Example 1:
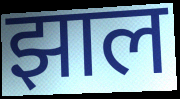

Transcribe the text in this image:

झाल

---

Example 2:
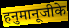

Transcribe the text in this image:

हनुमानूजीके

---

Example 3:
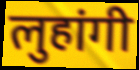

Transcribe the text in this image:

लुहांगी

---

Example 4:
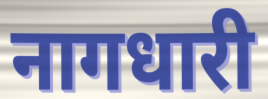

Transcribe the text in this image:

नागधारी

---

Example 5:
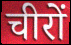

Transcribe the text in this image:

चीरों